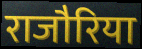
राजौरिया